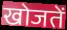
खोजतें